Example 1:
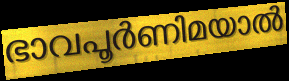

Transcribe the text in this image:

ഭാവപൂർണിമയാൽ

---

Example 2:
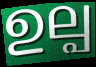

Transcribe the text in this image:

ഉല്പ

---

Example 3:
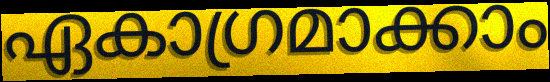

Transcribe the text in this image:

ഏകാഗ്രമാക്കാം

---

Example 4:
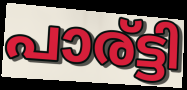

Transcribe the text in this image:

പാര്ട്ടി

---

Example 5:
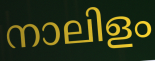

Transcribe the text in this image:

നാലിളം